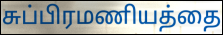
சுப்பிரமணியத்தை